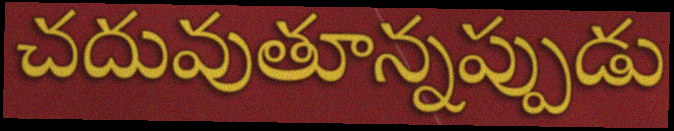
చదువుతూన్నప్పుడు